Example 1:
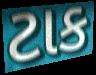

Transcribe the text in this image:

ટાક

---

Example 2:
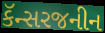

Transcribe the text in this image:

કૅન્સરજનીન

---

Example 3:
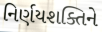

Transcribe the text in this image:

નિર્ણયશક્તિને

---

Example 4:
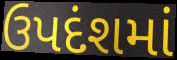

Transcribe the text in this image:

ઉપદંશમાં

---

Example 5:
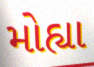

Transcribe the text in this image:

મોહ્યા